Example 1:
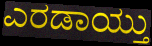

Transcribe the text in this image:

ಎರಡಾಯ್ತು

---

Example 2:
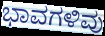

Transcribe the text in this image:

ಭಾವಗಳಿವು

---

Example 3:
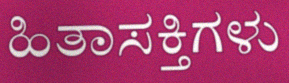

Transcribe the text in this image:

ಹಿತಾಸಕ್ತಿಗಳು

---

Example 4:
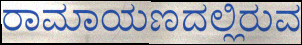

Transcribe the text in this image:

ರಾಮಾಯಣದಲ್ಲಿರುವ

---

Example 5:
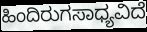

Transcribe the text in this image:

ಹಿಂದಿರುಗಸಾಧ್ಯವಿದೆ